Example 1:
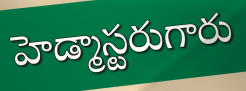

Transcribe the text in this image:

హెడ్మాస్టరుగారు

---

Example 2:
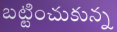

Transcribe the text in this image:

బట్టించుకున్న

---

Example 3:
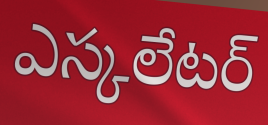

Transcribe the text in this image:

ఎస్కలేటర్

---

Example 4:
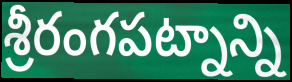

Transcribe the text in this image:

శ్రీరంగపట్నాన్ని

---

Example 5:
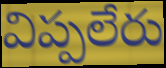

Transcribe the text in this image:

విప్పలేరు